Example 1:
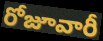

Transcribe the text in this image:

రోజూవారీ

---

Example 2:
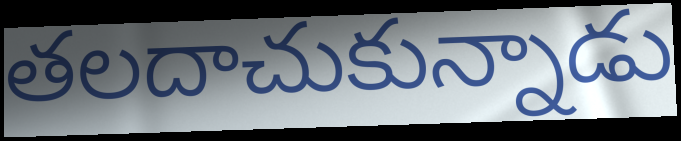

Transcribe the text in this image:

తలదాచుకున్నాడు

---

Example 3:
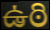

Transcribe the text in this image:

ఉఠి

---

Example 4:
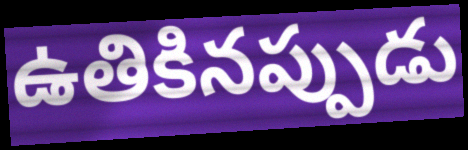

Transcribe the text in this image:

ఉతికినప్పుడు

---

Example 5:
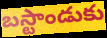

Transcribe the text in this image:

బస్టాండుకు